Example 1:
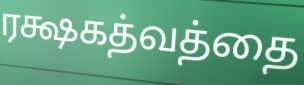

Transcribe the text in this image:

ரக்ஷகத்வத்தை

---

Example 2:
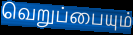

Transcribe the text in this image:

வெறுப்பையும்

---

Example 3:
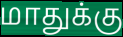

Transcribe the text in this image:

மாதுக்கு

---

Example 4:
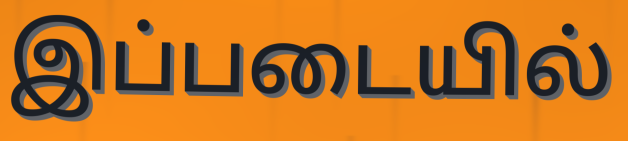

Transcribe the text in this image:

இப்படையில்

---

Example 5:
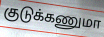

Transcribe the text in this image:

குடுக்கணுமா